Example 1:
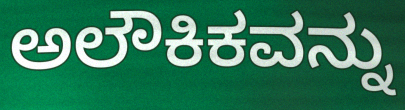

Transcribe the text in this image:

ಅಲೌಕಿಕವನ್ನು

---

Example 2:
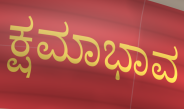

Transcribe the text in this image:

ಕ್ಷಮಾಭಾವ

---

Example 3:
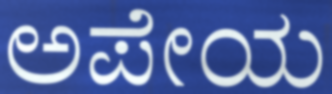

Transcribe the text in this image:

ಅಪೇಯ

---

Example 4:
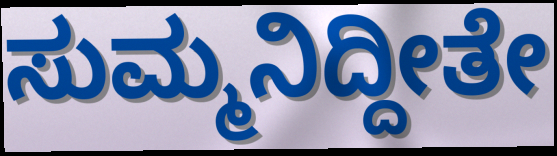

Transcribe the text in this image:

ಸುಮ್ಮನಿದ್ದೀತೇ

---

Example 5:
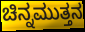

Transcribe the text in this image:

ಚಿನ್ನಮುತ್ತನ